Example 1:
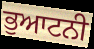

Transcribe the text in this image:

ਭੁਆਟਨੀ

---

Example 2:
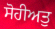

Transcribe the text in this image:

ਸੋਹੀਅਤੁ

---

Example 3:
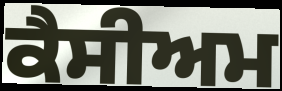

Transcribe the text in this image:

ਕੈਸੀਅਮ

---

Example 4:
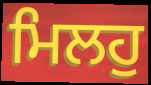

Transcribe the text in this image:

ਮਿਲਹੁ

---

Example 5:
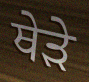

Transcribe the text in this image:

ਥੇੜੇ